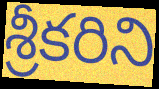
శ్రీకరిని